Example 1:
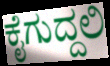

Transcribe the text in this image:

ಕೈಗುದ್ದಲಿ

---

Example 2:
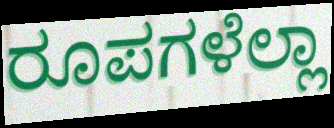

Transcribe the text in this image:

ರೂಪಗಳೆಲ್ಲಾ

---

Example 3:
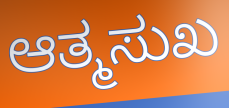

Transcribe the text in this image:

ಆತ್ಮಸುಖ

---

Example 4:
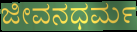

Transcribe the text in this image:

ಜೀವನಧರ್ಮ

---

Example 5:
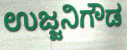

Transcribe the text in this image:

ಉಜ್ಜನಿಗೌಡ